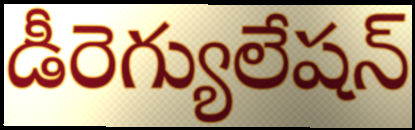
డీరెగ్యులేషన్